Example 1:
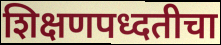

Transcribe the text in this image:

शिक्षणपध्दतीचा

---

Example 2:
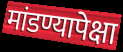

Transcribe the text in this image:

मांडण्यापेक्षा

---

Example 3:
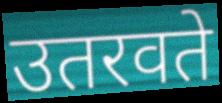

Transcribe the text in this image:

उतरवते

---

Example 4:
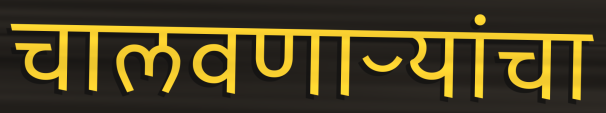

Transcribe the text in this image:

चालवणाऱ्यांचा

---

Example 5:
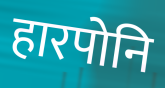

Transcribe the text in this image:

हारपोनि